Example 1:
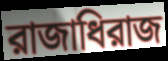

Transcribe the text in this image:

রাজাধিরাজ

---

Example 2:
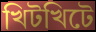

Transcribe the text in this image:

খিটখিটে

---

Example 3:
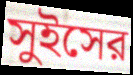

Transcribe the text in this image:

সুইসের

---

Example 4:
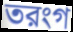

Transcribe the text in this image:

তরংগ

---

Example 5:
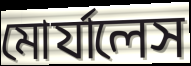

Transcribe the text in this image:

মোর্যালেস